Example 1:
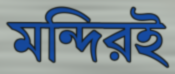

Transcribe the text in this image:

মন্দিরই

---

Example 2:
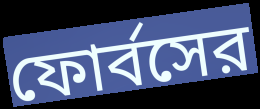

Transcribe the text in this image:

ফোর্বসের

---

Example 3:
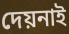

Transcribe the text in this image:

দেয়নাই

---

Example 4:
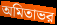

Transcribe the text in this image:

অমিতাভর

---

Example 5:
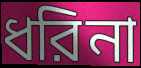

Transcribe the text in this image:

ধরিনা